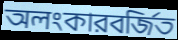
অলংকারবর্জিত